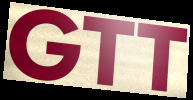
GTT